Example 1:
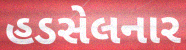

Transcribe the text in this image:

હડસેલનાર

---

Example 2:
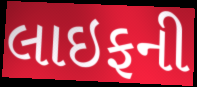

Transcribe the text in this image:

લાઇફની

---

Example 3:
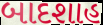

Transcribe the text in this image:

બાદશાહ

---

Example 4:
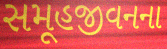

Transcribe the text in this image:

સમૂહજીવનના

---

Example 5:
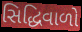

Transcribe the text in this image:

સિદ્ધિવાળો